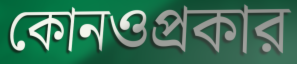
কোনওপ্রকার